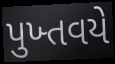
પુખ્તવયે